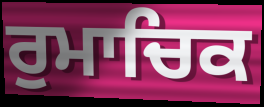
ਰੁਮਾਚਿਕ